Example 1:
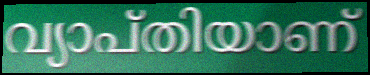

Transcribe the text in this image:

വ്യാപ്തിയാണ്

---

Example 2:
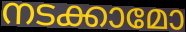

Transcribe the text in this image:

നടക്കാമോ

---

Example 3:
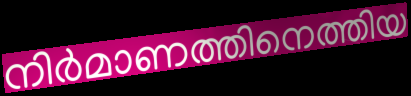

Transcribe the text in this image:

നിർമാണത്തിനെത്തിയ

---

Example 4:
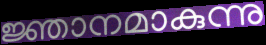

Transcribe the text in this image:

ജ്ഞാനമാകുന്നു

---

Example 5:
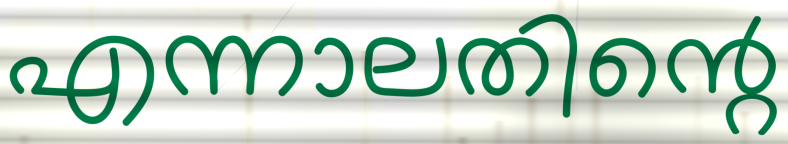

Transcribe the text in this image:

എന്നാലതിന്റെ